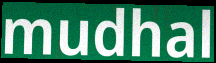
mudhal